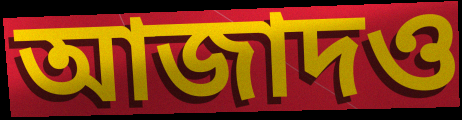
আজাদও